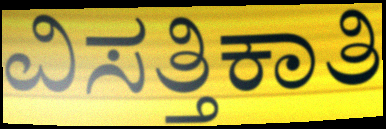
ವಿಸತ್ತಿಕಾತಿ